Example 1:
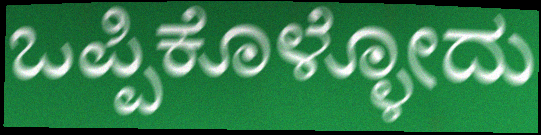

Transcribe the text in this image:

ಒಪ್ಪಿಕೊಳ್ಳೋದು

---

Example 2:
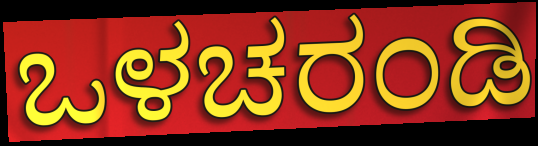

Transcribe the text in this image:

ಒಳಚರಂಡಿ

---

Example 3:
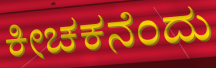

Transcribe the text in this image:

ಕೀಚಕನೆಂದು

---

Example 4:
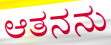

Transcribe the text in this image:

ಆತನನು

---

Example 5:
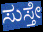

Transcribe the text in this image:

ಸುಸ್ತೇ